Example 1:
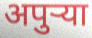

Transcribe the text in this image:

अपुर्‍या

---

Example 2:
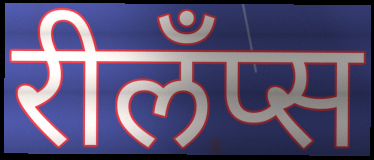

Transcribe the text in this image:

रीलँप्स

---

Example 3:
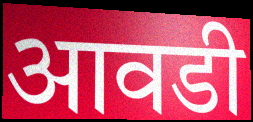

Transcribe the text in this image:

आवडी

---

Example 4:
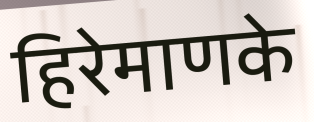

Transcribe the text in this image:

हिरेमाणके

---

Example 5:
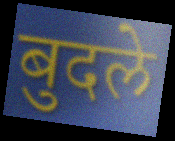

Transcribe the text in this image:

बुदले